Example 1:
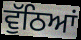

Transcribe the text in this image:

ਵੁੱਠਿਆਂ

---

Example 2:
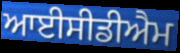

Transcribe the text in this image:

ਆਈਸੀਡੀਐਮ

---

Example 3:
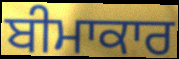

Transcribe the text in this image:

ਬੀਮਾਕਾਰ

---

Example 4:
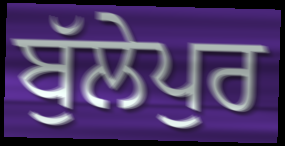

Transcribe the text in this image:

ਬੁੱਲੇਪੁਰ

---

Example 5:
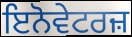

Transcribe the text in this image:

ਇਨੋਵੇਟਰਜ਼